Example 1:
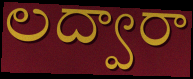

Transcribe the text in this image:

లద్వారా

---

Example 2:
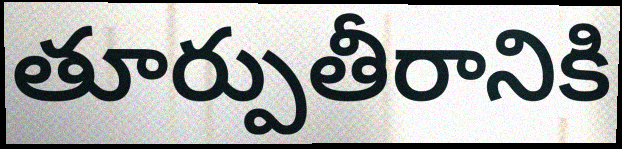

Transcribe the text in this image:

తూర్పుతీరానికి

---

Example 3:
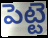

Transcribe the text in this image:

పెట్టె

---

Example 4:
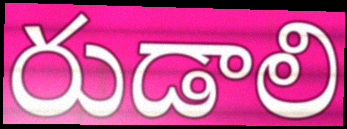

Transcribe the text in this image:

రుడాలి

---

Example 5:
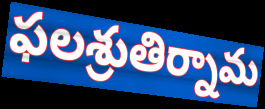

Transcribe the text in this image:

ఫలశ్రుతిర్నామ